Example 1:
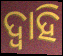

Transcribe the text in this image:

ଦ୍ଵାହି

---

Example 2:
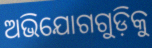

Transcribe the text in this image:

ଅଭିଯୋଗଗୁଡ଼ିକୁ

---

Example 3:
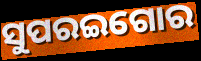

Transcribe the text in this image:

ସୁପରଇଗୋର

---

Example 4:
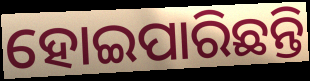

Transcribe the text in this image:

ହୋଇପାରିଛନ୍ତି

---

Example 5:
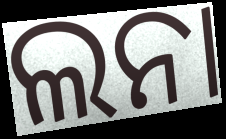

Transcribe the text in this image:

ଲନା